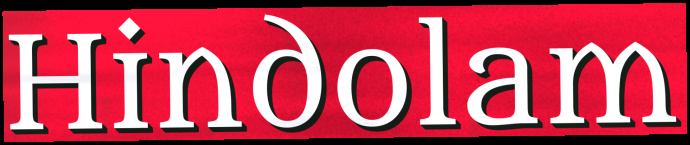
Hindolam